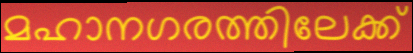
മഹാനഗരത്തിലേക്ക്